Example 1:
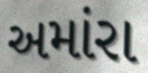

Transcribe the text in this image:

અમાંરા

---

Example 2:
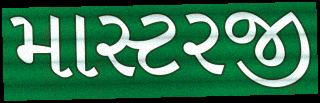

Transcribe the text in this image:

માસ્ટરજી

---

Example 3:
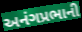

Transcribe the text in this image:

અનંગપ્રભાની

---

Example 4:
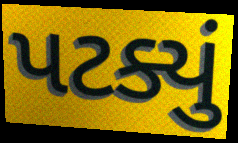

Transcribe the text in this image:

પટક્યું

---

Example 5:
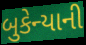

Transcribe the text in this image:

બુકેન્યાની